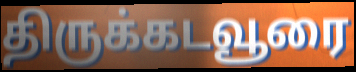
திருக்கடவூரை